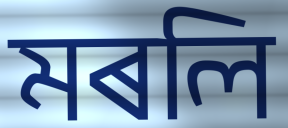
মৰলি